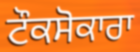
ਟੌਕਸੋਕਾਰਾ